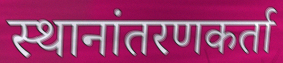
स्थानांतरणकर्ता